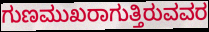
ಗುಣಮುಖರಾಗುತ್ತಿರುವವರ